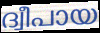
ദ്വീപായ